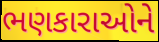
ભણકારાઓને